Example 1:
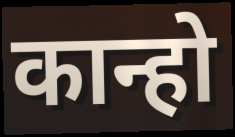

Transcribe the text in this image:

कान्हो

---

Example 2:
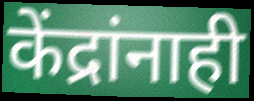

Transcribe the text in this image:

केंद्रांनाही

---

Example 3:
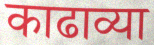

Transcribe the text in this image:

काढाव्या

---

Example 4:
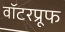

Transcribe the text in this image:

वॉटरप्रूफ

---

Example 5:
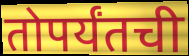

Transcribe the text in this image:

तोपर्यंतची